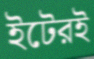
ইটেরই